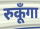
रुकूँगा